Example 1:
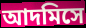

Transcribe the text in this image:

আদমিসে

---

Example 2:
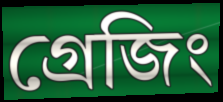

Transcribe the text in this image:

গ্রেজিং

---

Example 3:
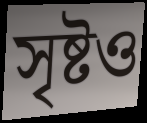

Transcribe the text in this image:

সৃষ্টও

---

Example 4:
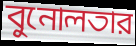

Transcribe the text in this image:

বুনোলতার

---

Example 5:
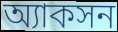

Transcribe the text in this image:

অ্যাকসন